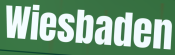
Wiesbaden